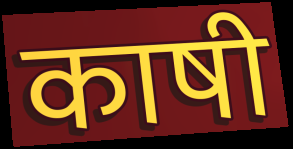
काषी